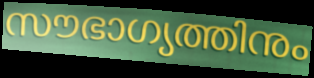
സൗഭാഗ്യത്തിനും